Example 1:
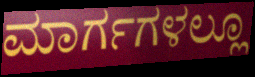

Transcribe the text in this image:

ಮಾರ್ಗಗಳಲ್ಲೂ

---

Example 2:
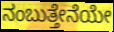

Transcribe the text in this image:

ನಂಬುತ್ತೇನೆಯೇ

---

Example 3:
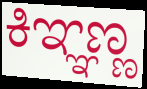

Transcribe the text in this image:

ಕಿಞ್ಞಣ್ಣ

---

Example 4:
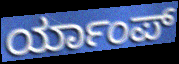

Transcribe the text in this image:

ರ್ಯಾಂಪ್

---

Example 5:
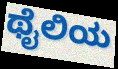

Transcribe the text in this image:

ಥೈಲಿಯ